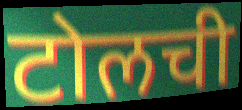
टोलची